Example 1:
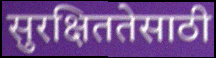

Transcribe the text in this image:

सुरक्षिततेसाठी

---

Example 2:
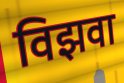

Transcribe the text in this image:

विझवा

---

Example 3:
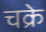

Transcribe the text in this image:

चक्रे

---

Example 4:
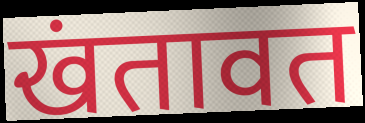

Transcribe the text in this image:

खंतावत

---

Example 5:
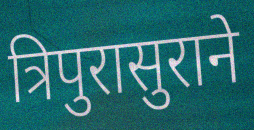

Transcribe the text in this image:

त्रिपुरासुराने